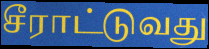
சீராட்டுவது